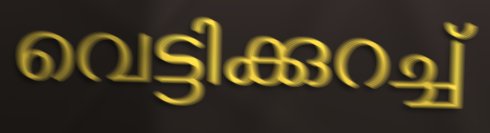
വെട്ടിക്കുറച്ച്